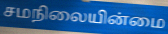
சமநிலையின்மை